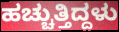
ಹಚ್ಚುತ್ತಿದ್ದಳು